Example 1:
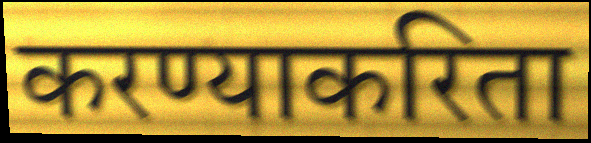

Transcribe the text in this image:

करण्याकरिता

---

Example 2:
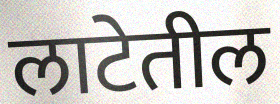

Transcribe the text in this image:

लाटेतील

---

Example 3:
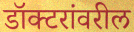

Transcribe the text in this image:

डॉक्टरांवरील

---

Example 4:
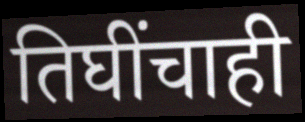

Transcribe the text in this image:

तिघींचाही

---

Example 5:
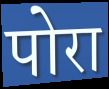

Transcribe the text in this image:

पोरा